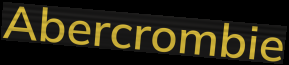
Abercrombie